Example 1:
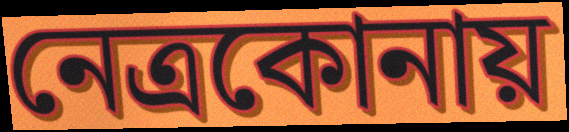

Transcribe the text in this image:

নেত্রকোনায়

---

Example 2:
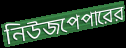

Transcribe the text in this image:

নিউজপেপারের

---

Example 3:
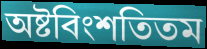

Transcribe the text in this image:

অষ্টবিংশতিতম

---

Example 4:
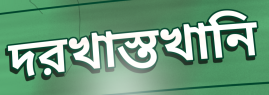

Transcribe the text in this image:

দরখাস্তখানি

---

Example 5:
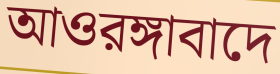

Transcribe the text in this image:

আওরঙ্গাবাদে